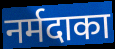
नर्मदाका